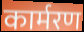
कार्मरण